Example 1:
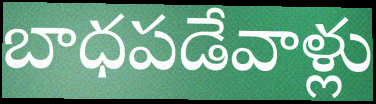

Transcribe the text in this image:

బాధపడేవాళ్లు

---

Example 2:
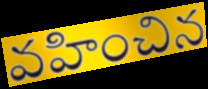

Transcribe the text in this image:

వహించిన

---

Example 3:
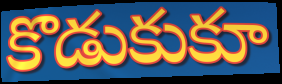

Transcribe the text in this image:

కొడుకుకూ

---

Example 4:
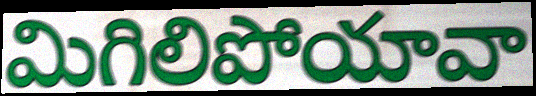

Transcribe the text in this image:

మిగిలిపోయావా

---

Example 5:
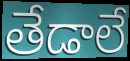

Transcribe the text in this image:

తేడాలే